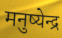
मनुष्येन्द्र